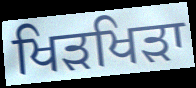
ਖਿੜਖਿੜਾ